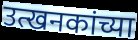
उत्खनकांच्या